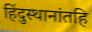
हिंदुस्थानांतहि